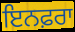
ਇਨਫ਼ਰਾ